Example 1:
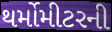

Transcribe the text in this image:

થર્મોમીટરની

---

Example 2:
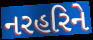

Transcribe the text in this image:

નરહરિને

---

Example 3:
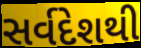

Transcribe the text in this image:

સર્વદેશથી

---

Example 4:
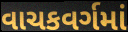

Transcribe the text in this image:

વાચકવર્ગમાં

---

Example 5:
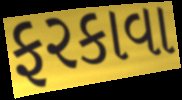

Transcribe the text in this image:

ફરકાવા